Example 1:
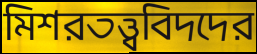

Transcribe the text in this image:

মিশরতত্ত্ববিদদের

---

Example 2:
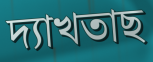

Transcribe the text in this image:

দ্যাখতাছ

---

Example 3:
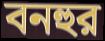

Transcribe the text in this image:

বনহুর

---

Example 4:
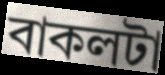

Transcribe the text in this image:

বাকলটা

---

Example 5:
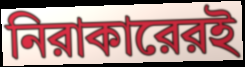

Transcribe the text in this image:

নিরাকারেরই